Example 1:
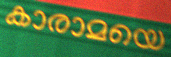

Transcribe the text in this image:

കാരാമയെ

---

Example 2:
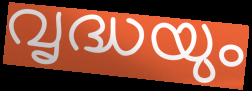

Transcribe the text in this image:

വൃദ്ധയും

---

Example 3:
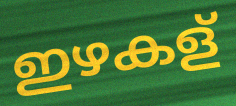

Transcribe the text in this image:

ഇഴകള്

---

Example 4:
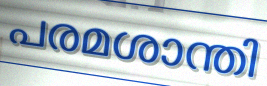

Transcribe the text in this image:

പരമശാന്തി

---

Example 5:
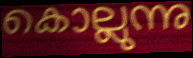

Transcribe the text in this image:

കൊല്ലുന്നു